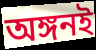
অঙ্গনই